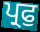
ਪ੍ਰਫੁ